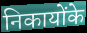
निकायोंके